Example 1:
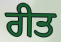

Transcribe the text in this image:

ਰੀਤ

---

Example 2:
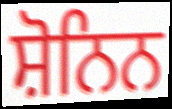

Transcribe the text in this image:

ਸ਼ੋਨਿਨ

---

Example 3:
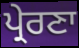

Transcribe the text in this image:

ਪ੍ਰੇਰਣਾ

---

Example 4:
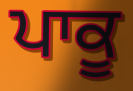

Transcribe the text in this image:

ਪਾਕੂ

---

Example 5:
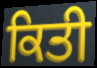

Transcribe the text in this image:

ਕਿਤੀ